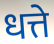
धत्ते